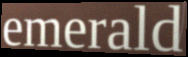
emerald